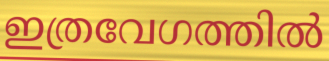
ഇത്രവേഗത്തിൽ